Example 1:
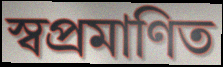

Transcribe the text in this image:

স্বপ্রমাণিত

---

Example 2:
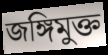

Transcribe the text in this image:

জঙ্গিমুক্ত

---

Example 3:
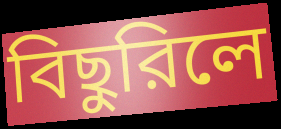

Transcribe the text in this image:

বিছুরিলে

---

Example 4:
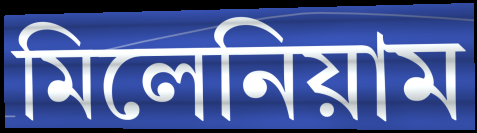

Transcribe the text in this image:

মিলেনিয়াম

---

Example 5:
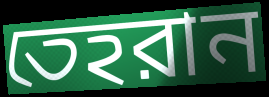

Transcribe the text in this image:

তেহরান